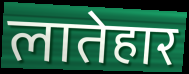
लातेहार